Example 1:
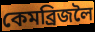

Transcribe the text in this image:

কেমব্ৰিজলৈ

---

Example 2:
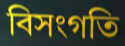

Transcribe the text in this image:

বিসংগতি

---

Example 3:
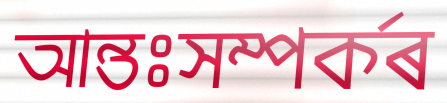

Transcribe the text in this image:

আন্তঃসম্পৰ্কৰ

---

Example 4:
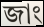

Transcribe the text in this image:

জাং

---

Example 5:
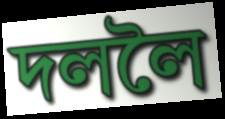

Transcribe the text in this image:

দললৈ